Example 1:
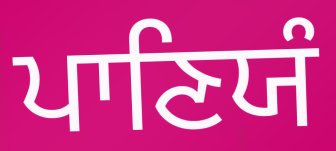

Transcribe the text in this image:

ਪਾਣਿਯੰ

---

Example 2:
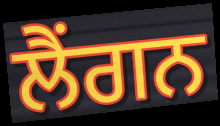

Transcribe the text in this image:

ਲੈਂਗਨ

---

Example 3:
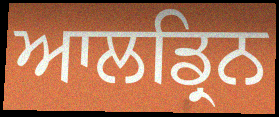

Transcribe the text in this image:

ਆਲਡ੍ਰਿਨ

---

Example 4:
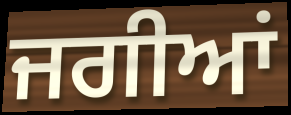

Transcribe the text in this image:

ਜਗੀਆਂ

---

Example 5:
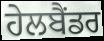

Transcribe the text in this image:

ਹੇਲਬੈਂਡਰ